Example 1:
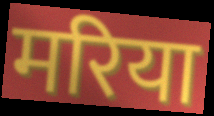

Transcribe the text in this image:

मरिया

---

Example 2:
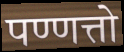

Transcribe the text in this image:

पण्णत्तो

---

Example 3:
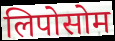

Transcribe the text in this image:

लिपोसोम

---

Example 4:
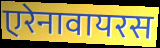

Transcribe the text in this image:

एरेनावायरस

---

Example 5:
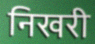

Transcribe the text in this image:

निखरी